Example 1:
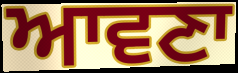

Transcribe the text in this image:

ਆਵਣਾ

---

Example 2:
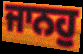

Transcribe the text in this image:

ਜਾਨਹੁ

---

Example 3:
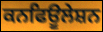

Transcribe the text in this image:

ਕਨਫਿਊਲੇਸ਼ਨ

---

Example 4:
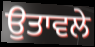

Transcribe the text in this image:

ਉਤਾਵਲੇ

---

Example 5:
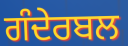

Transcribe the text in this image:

ਗੰਦੇਰਬਲ